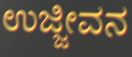
ಉಜ್ಜೀವನ